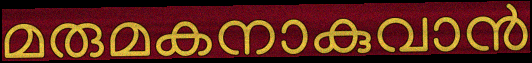
മരുമകനാകുവാൻ